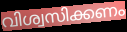
വിശ്വസിക്കണം